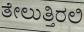
ತೇಲುತ್ತಿರಲಿ